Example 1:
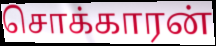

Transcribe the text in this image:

சொக்காரன்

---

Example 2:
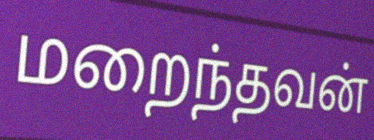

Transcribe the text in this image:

மறைந்தவன்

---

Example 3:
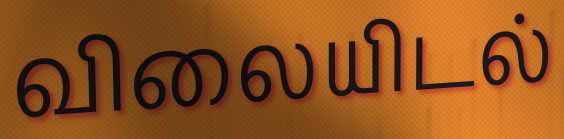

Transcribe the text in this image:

விலையிடல்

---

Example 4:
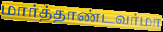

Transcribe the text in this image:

மார்த்தாண்டவர்மா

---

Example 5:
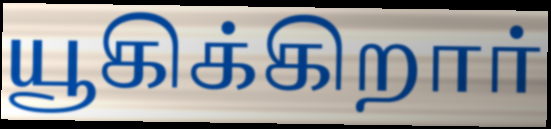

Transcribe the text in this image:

யூகிக்கிறார்